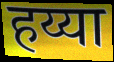
हय्या